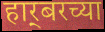
हार्बरच्या